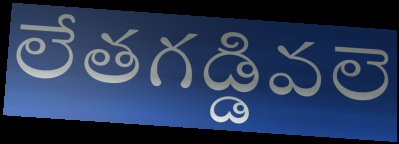
లేతగడ్డివలె